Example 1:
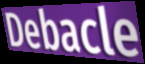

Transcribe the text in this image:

Debacle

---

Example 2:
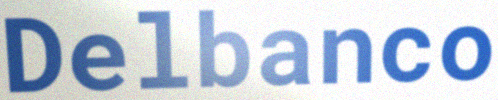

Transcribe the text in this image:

Delbanco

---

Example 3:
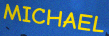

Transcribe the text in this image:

MICHAEL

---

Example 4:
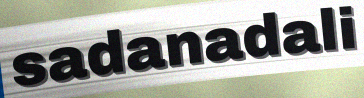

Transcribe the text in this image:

sadanadali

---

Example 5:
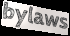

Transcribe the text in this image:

bylaws